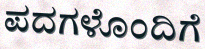
ಪದಗಳೊಂದಿಗೆ